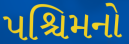
પશ્ચિમનો